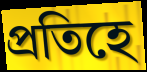
প্ৰতিহে